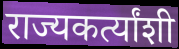
राज्यकर्त्यांशी